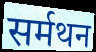
सर्मथन